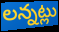
లన్నట్లు